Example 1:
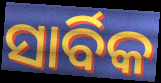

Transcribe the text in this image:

ସାର୍ବିକ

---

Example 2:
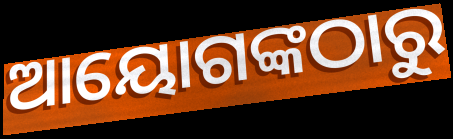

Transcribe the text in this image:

ଆୟୋଗଙ୍କଠାରୁ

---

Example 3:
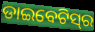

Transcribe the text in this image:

ଡାଇବେଟିସ୍‌ର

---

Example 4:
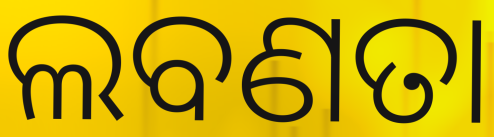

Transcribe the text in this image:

ଲବଣତା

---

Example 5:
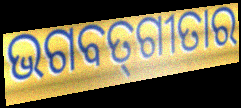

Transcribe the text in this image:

ଭଗବତ୍‍ଗୀତାର